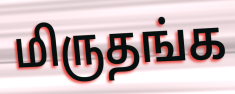
மிருதங்க